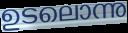
ഉടലൊന്നു